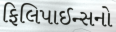
ફિલિપાઈન્સનો